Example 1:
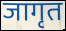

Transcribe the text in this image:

जागृत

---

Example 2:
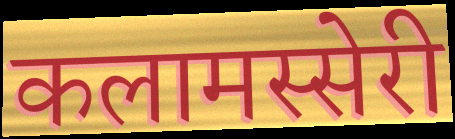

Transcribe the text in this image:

कलामस्सेरी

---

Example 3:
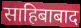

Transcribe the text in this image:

साहिबाबाद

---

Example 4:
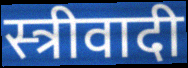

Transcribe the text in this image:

स्त्रीवादी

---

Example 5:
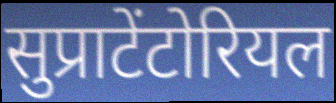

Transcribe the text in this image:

सुप्राटेंटोरियल